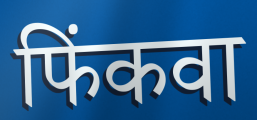
फिंकवा